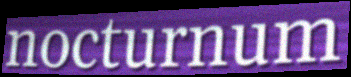
nocturnum